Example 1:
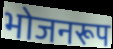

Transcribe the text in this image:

भोजनरूप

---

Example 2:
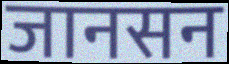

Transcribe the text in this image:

जानसन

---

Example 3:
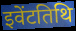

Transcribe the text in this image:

इवेंटतिथि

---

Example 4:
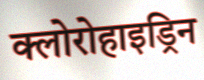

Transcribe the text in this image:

क्लोरोहाइड्रिन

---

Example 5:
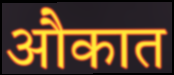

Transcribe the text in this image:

औकात